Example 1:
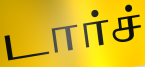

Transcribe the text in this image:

டார்ச்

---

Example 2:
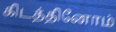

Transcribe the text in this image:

கிடத்தினோம்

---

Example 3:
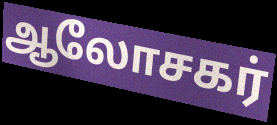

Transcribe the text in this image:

ஆலோசகர்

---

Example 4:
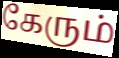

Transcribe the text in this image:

கேரும்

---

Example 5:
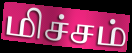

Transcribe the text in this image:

மிச்சம்